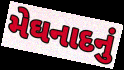
મેઘનાદનું